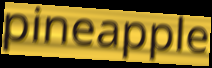
pineapple